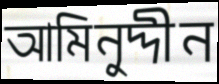
আমিনুদ্দীন